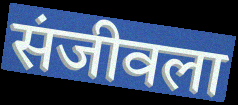
संजीवला